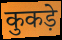
कुकड़े